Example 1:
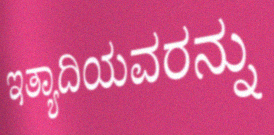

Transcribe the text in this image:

ಇತ್ಯಾದಿಯವರನ್ನು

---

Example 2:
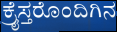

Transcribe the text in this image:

ಕ್ರೈಸ್ತರೊಂದಿಗಿನ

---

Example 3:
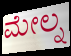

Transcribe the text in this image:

ಮೇಲ್ನ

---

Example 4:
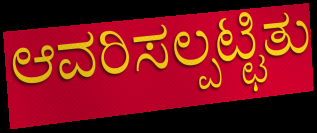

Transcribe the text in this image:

ಆವರಿಸಲ್ಪಟ್ಟಿತು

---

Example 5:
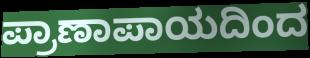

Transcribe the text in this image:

ಪ್ರಾಣಾಪಾಯದಿಂದ